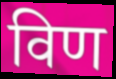
विण